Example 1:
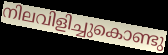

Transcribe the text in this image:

നിലവിളിച്ചുകൊണ്ടു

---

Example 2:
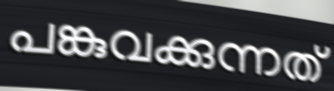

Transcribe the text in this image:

പങ്കുവക്കുന്നത്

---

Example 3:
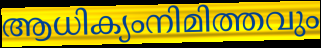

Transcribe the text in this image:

ആധിക്യംനിമിത്തവും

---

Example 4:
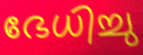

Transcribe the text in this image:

ഭേധിച്ചു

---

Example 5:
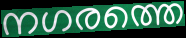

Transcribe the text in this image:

നഗരത്തെ